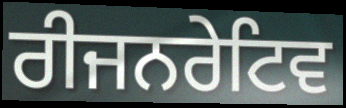
ਰੀਜਨਰੇਟਿਵ